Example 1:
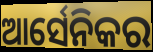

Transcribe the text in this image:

ଆର୍ସେନିକର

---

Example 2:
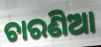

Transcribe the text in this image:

ଚାରଣିଆ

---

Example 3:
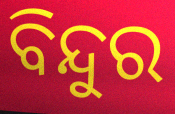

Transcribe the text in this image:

ବିନ୍ଦୁର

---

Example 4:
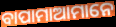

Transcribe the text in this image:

ବାପାମାଆମାନେ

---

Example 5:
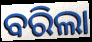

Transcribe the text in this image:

ବରିଲା